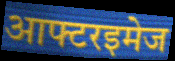
आफ्टरइमेज